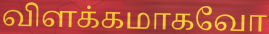
விளக்கமாகவோ